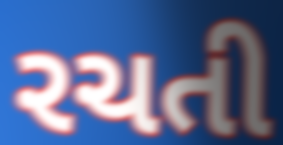
રચતી